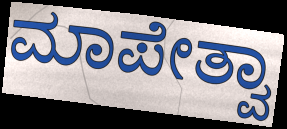
ಮಾಪೇತ್ವಾ